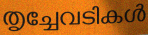
തൃച്ചേവടികൾ